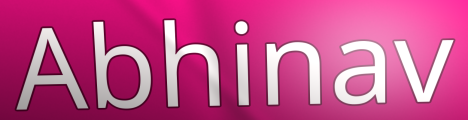
Abhinav